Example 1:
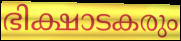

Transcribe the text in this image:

ഭിക്ഷാടകരും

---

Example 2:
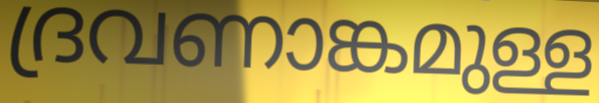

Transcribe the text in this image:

ദ്രവണാങ്കമുള്ള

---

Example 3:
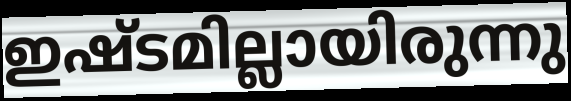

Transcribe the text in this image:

ഇഷ്ടമില്ലായിരുന്നു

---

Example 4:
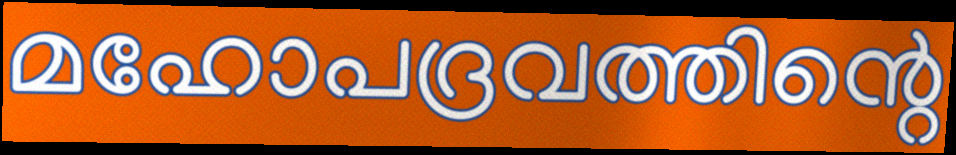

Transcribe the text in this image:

മഹോപദ്രവത്തിന്റെ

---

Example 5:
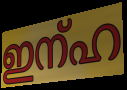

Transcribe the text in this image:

ഇന്ഹ